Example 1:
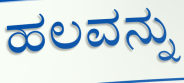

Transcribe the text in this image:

ಹಲವನ್ನು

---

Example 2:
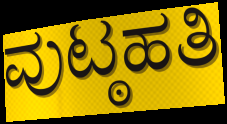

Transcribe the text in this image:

ವುಟ್ಠಹತಿ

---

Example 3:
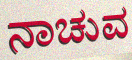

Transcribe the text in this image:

ನಾಚುವ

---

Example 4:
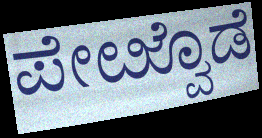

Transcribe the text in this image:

ಪೇೞ್ವೊಡೆ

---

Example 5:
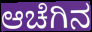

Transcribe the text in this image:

ಆಚೆಗಿನ